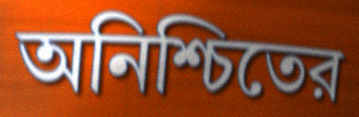
অনিশ্চিতের